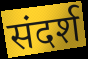
संदर्श